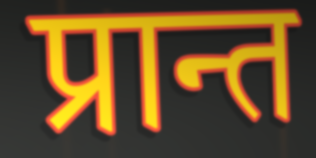
प्रान्त